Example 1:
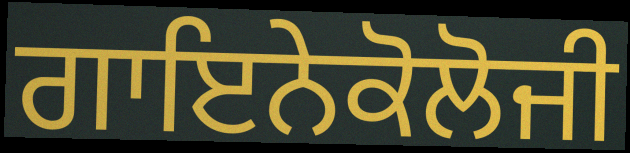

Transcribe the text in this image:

ਗਾਇਨੇਕੋਲੋਜੀ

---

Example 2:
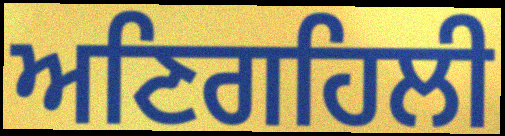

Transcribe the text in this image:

ਅਣਿਗਹਿਲੀ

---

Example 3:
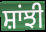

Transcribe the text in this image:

ਸ਼ਾਂਝੀ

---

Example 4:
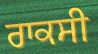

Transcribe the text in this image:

ਰਾਕਸੀ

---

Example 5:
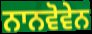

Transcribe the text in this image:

ਨਾਨਵੋਵੇਨ